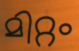
മിറ്റം